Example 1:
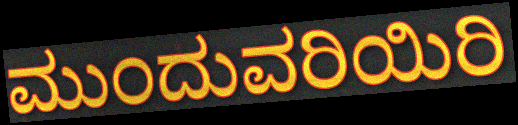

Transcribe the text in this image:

ಮುಂದುವರಿಯಿರಿ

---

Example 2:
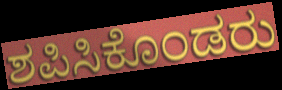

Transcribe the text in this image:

ಶಪಿಸಿಕೊಂಡರು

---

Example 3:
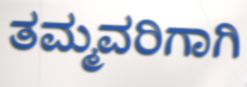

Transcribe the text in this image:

ತಮ್ಮವರಿಗಾಗಿ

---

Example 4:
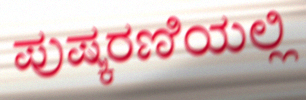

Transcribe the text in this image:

ಪುಷ್ಕರಣಿಯಲ್ಲಿ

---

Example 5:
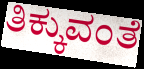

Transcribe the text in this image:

ತಿಕ್ಕುವಂತೆ